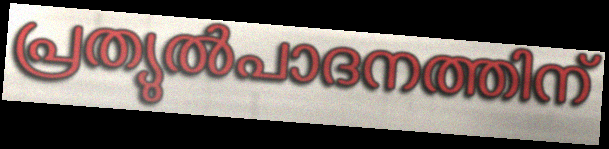
പ്രത്യുൽപാദനത്തിന്